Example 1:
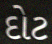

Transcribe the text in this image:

દોટ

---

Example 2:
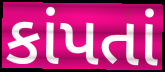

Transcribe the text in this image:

કાંપતાં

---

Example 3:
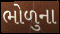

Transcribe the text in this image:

ભોળુના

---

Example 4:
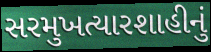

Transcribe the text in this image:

સરમુખત્યારશાહીનું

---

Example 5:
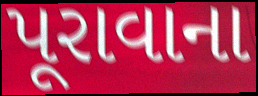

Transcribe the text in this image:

પૂરાવાના